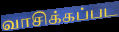
வாசிக்கப்பட